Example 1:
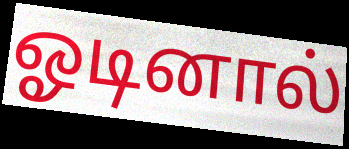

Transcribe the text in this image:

ஓடினால்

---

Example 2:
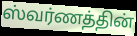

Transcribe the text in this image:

ஸ்வர்ணத்தின்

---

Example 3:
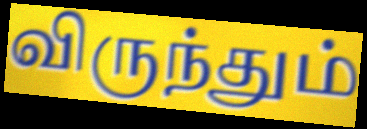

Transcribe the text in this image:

விருந்தும்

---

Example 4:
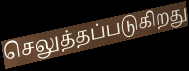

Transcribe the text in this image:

செலுத்தப்படுகிறது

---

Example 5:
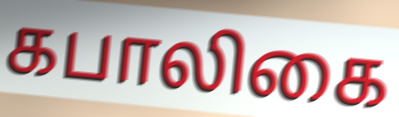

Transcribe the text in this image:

கபாலிகை